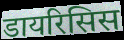
डायरिसिस